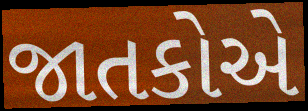
જાતકોએ